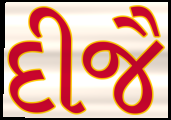
દીજૈ